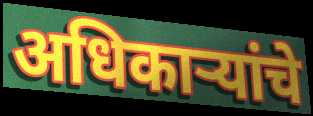
अधिकाऱ्यांचे